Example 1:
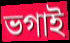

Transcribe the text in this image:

ভগাই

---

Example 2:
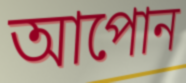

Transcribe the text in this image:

আপোন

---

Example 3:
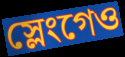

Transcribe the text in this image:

স্লেংগেও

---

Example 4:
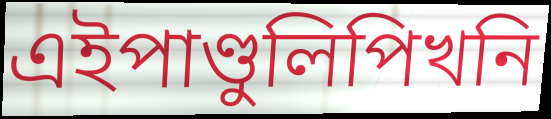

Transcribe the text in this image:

এইপাণ্ডুলিপিখনি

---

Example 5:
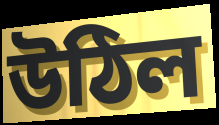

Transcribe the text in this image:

উঠিল